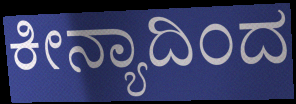
ಕೀನ್ಯಾದಿಂದ